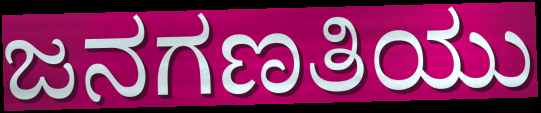
ಜನಗಣತಿಯು